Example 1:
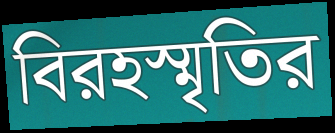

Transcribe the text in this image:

বিরহস্মৃতির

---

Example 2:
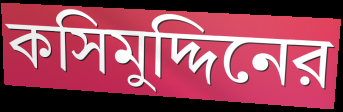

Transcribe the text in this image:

কসিমুদ্দিনের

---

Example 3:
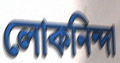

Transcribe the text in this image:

লোকনিন্দা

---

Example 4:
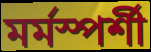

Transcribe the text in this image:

মর্মস্পর্শী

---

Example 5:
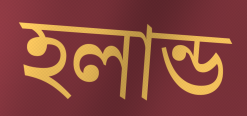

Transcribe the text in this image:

হলান্ড